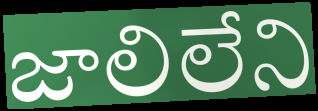
జాలిలేని